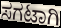
ಸಗಟಾಗಿ